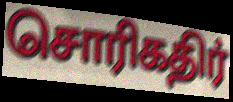
சொரிகதிர்